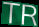
TR